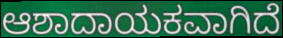
ಆಶಾದಾಯಕವಾಗಿದೆ